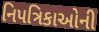
નિપત્રિકાઓની